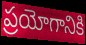
ప్రయోగానికి